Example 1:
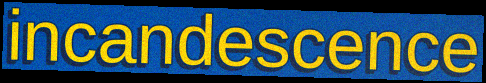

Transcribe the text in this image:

incandescence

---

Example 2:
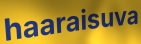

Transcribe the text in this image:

haaraisuva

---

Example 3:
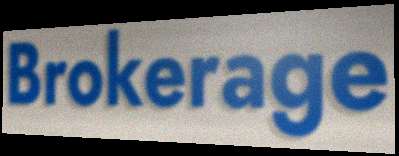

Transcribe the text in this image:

Brokerage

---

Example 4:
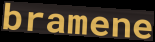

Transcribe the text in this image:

bramene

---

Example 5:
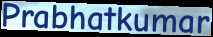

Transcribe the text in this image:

Prabhatkumar